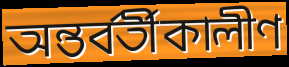
অন্তর্বর্তীকালীণ